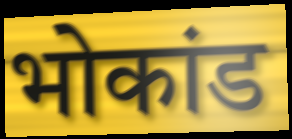
भोकांड